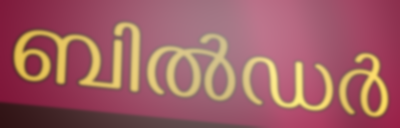
ബിൽഡർ